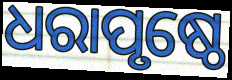
ଧରାପୃଷ୍ଠେ